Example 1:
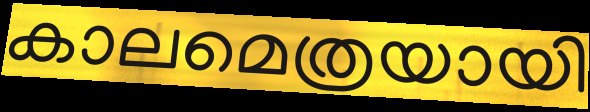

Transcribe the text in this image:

കാലമെത്രയായി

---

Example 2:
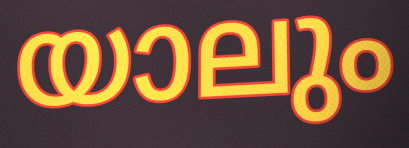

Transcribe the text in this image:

യാലും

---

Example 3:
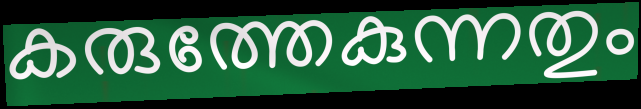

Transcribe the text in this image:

കരുത്തേകുന്നതും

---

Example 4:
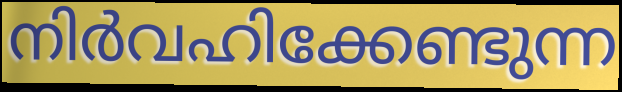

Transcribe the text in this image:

നിർവഹിക്കേണ്ടുന്ന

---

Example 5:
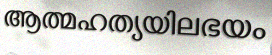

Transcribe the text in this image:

ആത്മഹത്യയിലഭയം